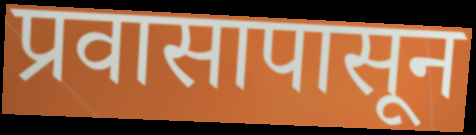
प्रवासापासून